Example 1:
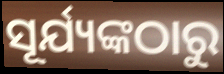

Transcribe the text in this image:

ସୂର୍ଯ୍ୟଙ୍କଠାରୁ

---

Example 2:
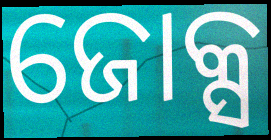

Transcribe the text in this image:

ଜୋକ୍ସ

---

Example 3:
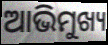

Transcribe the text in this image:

ଆଭିମୁଖ୍ୟ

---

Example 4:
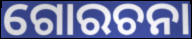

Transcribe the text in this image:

ଗୋରଚନା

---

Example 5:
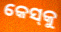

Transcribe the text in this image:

କେସ୍‌କୁ